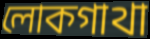
লোকগাথা